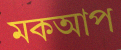
মকআপ